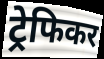
ट्रेफिकर